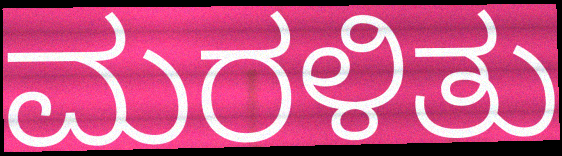
ಮರಳಿತು